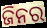
ଜିନର